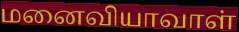
மனைவியாவாள்